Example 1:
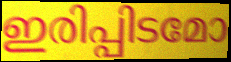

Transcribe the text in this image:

ഇരിപ്പിടമോ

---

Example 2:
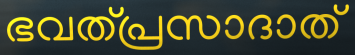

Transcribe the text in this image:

ഭവത്പ്രസാദാത്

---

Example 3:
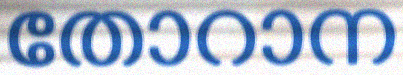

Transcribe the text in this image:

തോറാന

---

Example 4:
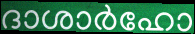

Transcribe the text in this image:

ദാശാർഹോ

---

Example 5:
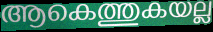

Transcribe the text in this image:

ആകെത്തുകയല്ല